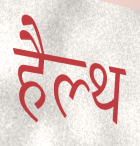
हैल्थ